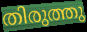
തിരുത്തു